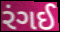
રંગઈ